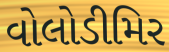
વોલોડીમિર